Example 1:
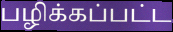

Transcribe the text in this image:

பழிக்கப்பட்ட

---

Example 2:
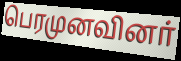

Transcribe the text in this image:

பெரமுனவினர்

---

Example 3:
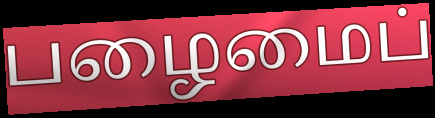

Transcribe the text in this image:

பழைமைப்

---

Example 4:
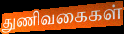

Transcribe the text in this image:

துணிவகைகள்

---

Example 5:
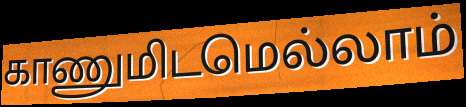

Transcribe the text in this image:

காணுமிடமெல்லாம்